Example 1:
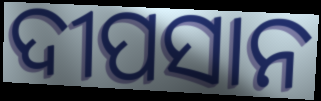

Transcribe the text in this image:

ଦୀପସାନ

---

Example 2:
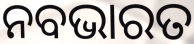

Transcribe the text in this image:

ନବଭାରତ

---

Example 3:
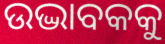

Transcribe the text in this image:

ଉଦ୍ଭାବକକୁ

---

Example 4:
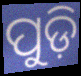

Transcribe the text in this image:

ପୁଡ଼ି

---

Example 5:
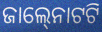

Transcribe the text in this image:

ଜାଲ୍‍ନୋଟଟି